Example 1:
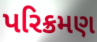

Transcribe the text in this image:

પરિક્રમણ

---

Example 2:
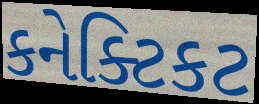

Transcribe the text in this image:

કનેક્ટિકટ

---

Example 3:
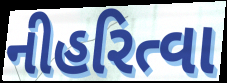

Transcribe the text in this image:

નીહરિત્વા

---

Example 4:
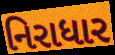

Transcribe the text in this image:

નિરાધાર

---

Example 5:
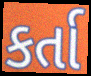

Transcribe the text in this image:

કર્તા